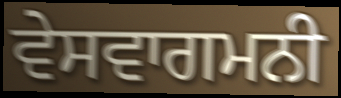
ਵੇਸਵਾਗਮਨੀ